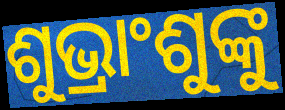
ଶୁଭ୍ରାଂଶୁଙ୍କୁ